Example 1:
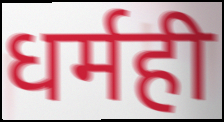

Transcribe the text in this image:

धर्मही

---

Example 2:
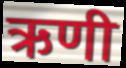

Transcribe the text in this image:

ऋणी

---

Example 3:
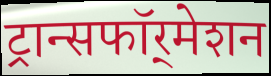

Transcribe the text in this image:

ट्रान्सफॉर्मेशन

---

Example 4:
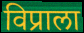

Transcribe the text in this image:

विप्राला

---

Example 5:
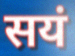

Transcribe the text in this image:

सयं